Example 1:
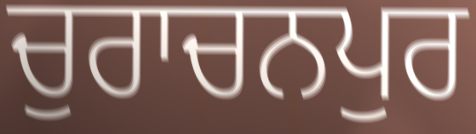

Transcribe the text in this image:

ਚੁਰਾਚਨਪੁਰ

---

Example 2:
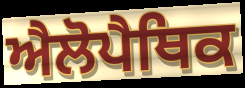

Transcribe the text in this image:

ਐਲੋਪੈਥਿਕ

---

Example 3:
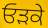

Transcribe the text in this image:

ਓੜਕੇ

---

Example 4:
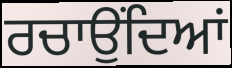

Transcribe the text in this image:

ਰਚਾਉਂਦਿਆਂ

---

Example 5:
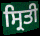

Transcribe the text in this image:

ਸ੍ਰਿਤੀ